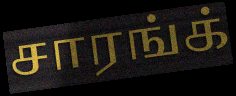
சாரங்க்